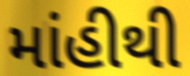
માંહીથી